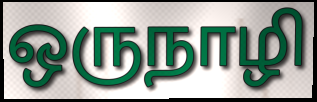
ஒருநாழி